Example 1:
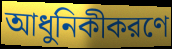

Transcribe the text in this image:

আধুনিকীকরণে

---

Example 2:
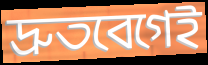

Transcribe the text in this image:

দ্রুতবেগেই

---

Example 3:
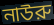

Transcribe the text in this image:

নাউরু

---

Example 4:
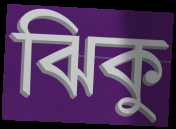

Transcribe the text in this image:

ঝিকু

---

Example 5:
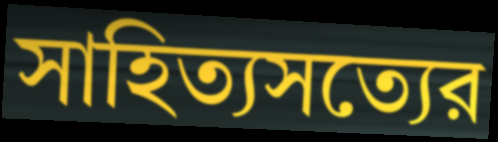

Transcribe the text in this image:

সাহিত্যসত্যের